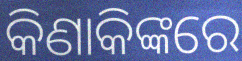
କିଣାକିଙ୍କରେ